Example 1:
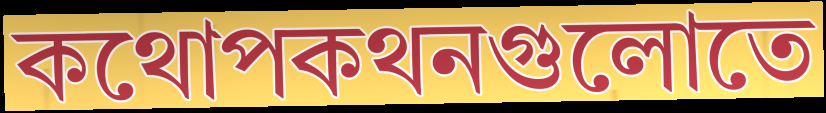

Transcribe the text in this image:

কথোপকথনগুলোতে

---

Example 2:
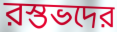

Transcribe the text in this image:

রস্তভদের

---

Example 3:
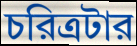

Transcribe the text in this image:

চরিত্রটার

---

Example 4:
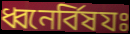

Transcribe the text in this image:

ধ্বনের্বিষযঃ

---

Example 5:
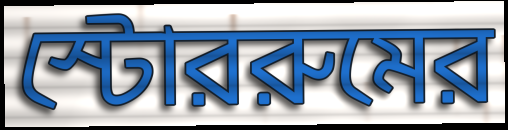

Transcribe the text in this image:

স্টোররুমের